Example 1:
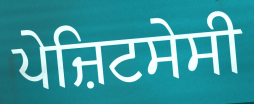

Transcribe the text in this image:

ਪੇਜ਼ਿਟਸੇਸੀ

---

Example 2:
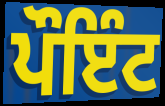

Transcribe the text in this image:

ਪੌਇੰਟ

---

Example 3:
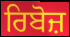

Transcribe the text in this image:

ਰਿਬੋਜ਼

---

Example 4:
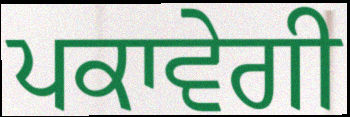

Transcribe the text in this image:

ਪਕਾਵੇਗੀ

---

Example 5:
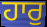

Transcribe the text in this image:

ਹਾਰੁ